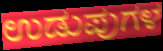
ಉಡುಪುಗಳ